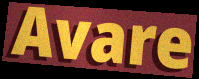
Avare